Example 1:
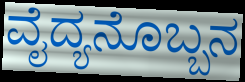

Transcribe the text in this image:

ವೈದ್ಯನೊಬ್ಬನ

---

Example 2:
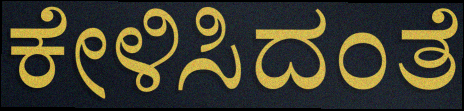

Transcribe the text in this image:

ಕೇಳಿಸಿದಂತೆ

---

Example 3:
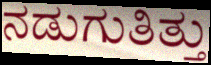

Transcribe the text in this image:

ನಡುಗುತಿತ್ತು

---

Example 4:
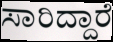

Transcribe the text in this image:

ಸಾರಿದ್ದಾರೆ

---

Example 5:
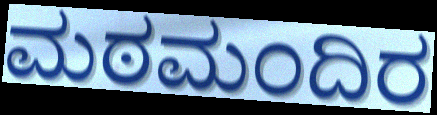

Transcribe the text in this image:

ಮಠಮಂದಿರ